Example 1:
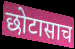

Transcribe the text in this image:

छोटासाच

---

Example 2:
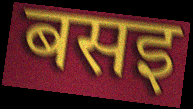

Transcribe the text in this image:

बसइ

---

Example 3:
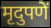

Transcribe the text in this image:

मृदुपणें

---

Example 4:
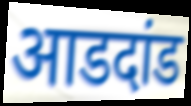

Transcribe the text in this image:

आडदांड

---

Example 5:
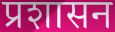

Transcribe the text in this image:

प्रशासन